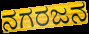
ನಗರಜನ